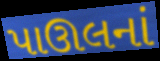
પાઊલનાં